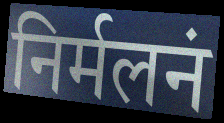
निर्मलनं